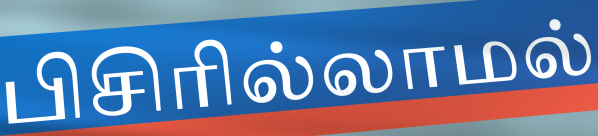
பிசிரில்லாமல்